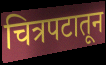
चित्रपटातून